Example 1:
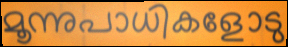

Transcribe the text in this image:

മൂന്നുപാധികളോടു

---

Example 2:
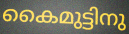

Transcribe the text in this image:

കൈമുട്ടിനു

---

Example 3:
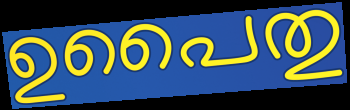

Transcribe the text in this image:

ഉപൈതു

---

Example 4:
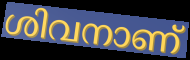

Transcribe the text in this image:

ശിവനാണ്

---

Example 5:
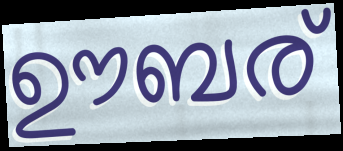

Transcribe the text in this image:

ഊബര്